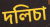
দলিচা